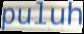
puluh